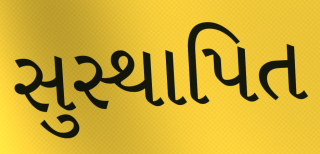
સુસ્થાપિત